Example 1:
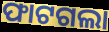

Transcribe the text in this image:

ଫାଟଗଲା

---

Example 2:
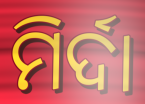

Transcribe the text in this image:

ମିର୍ଦା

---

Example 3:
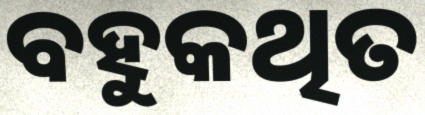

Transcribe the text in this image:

ବହୁକଥିତ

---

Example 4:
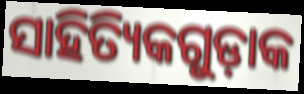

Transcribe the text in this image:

ସାହିତ୍ୟିକଗୁଡ଼ାକ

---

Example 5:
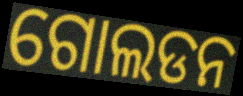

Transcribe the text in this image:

ଗୋଲଡନ